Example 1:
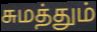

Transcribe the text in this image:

சுமத்தும்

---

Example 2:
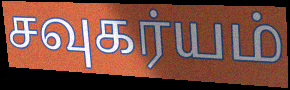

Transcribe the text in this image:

சவுகர்யம்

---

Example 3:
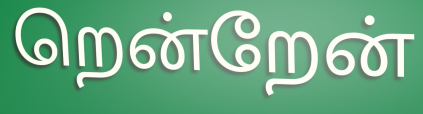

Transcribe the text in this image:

றென்றேன்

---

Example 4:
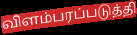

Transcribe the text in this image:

விளம்பரப்படுத்தி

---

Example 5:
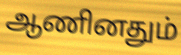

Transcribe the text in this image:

ஆணினதும்